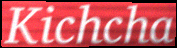
Kichcha